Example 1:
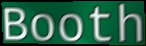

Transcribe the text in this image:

Booth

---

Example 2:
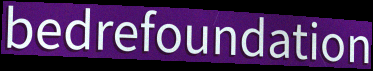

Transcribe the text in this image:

bedrefoundation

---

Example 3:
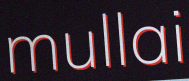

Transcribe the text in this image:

mullai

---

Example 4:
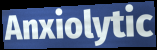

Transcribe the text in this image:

Anxiolytic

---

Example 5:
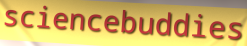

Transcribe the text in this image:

sciencebuddies